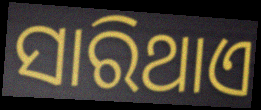
ସାରିଥାଏ